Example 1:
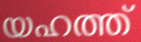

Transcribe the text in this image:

യഹത്ത്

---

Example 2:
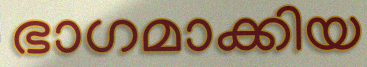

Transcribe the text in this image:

ഭാഗമാക്കിയ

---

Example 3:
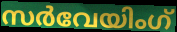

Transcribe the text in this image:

സർവേയിംഗ്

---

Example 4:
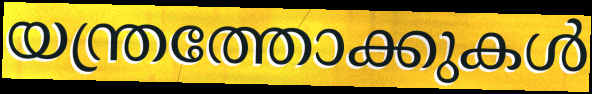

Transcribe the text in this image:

യന്ത്രത്തോക്കുകൾ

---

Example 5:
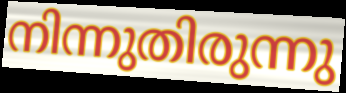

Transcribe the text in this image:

നിന്നുതിരുന്നു